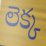
లెక్క